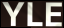
YLE